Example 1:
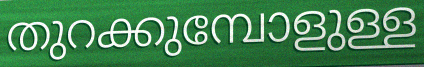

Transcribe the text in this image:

തുറക്കുമ്പോളുള്ള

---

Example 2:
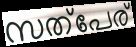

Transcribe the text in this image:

സത്പേര്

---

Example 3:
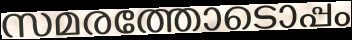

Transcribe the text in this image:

സമരത്തോടൊപ്പം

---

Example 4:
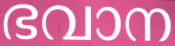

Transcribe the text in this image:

ഭവാന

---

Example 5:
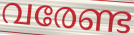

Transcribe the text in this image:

വരേണ്ട